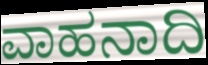
ವಾಹನಾದಿ